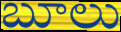
బూలు